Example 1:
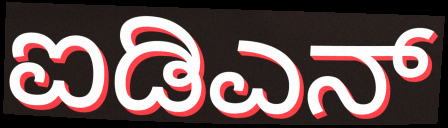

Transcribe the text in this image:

ಐಡಿಎನ್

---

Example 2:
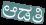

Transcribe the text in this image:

ಆಡತಿ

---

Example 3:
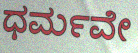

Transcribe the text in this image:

ಧರ್ಮವೇ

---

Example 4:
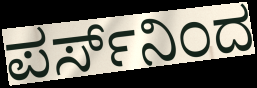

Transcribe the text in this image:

ಪರ್ಸ್‌ನಿಂದ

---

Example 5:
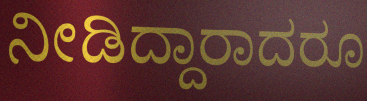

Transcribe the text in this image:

ನೀಡಿದ್ದಾರಾದರೂ